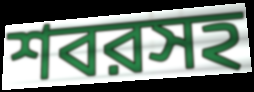
শবরসহ